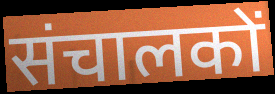
संचालकों